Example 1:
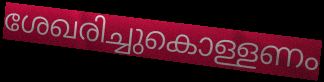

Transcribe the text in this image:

ശേഖരിച്ചുകൊള്ളണം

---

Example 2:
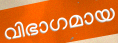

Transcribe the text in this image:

വിഭാഗമായ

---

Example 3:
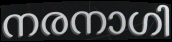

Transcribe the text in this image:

നരനാഗി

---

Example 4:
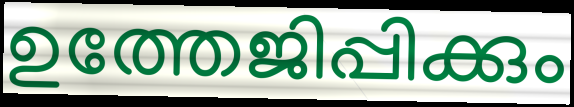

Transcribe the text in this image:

ഉത്തേജിപ്പിക്കും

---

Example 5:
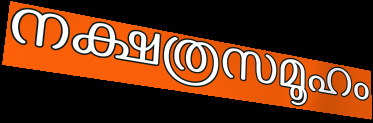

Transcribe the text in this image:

നക്ഷത്രസമൂഹം